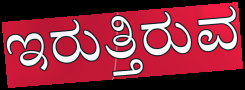
ಇರುತ್ತಿರುವ